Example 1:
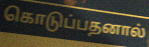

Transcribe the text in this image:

கொடுப்பதனால்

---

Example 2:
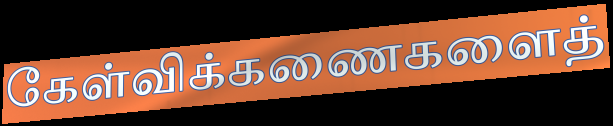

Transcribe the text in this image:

கேள்விக்கணைகளைத்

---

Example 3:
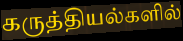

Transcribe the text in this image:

கருத்தியல்களில்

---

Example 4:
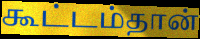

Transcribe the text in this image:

கூட்டம்தான்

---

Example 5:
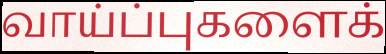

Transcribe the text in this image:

வாய்ப்புகளைக்